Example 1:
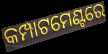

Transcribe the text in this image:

କମ୍ପାଟମେଣ୍ଟରେ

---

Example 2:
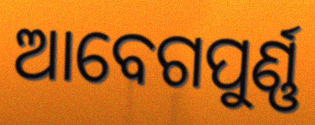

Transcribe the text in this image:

ଆବେଗପୁର୍ଣ୍ଣ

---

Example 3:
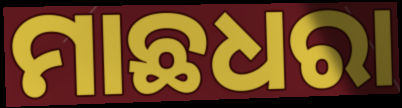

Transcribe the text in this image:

ମାଛଧରା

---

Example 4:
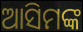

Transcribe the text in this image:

ଆସିମଙ୍କ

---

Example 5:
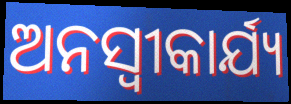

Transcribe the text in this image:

ଅନସ୍ୱୀକାର୍ଯ୍ୟ